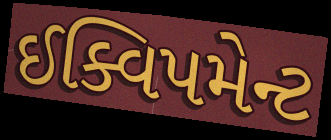
ઈક્વિપમેન્ટ